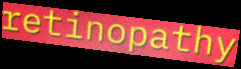
retinopathy